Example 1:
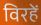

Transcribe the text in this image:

विरहें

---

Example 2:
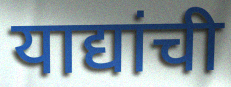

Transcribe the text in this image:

याद्यांची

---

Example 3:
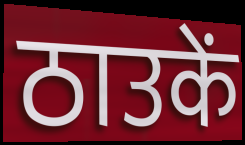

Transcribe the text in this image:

ठाउकें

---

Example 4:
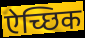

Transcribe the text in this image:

ऐच्छिक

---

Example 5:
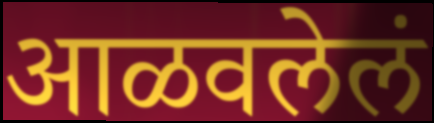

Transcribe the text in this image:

आळवलेलं